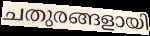
ചതുരങ്ങളായി